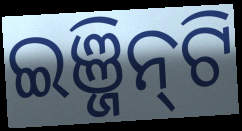
ଇଞ୍ଜିନ୍‌ଟି